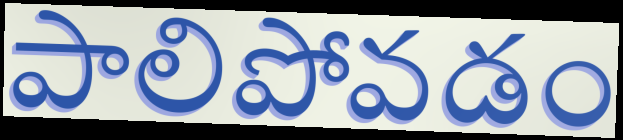
పాలిపోవడం